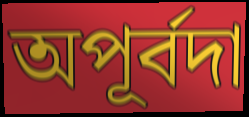
অপূর্বদা